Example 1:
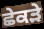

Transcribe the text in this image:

ਛੇਕੜੇ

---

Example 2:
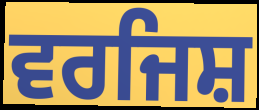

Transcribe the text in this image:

ਵਰਜਿਸ਼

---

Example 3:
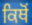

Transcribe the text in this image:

ਕਿਥੋਂ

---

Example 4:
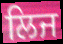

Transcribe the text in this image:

ਲਿਜ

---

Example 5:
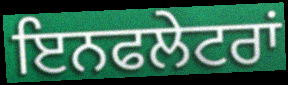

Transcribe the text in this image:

ਇਨਫਲੇਟਰਾਂ